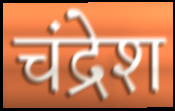
चंद्रेश